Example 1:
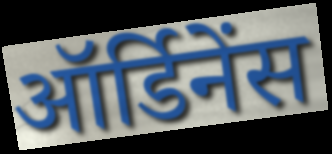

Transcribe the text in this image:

ऑर्डिनेंस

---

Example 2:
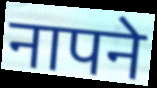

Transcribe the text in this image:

नापने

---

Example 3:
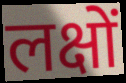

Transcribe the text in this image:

लक्षों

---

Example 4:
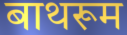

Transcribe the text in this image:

बाथरूम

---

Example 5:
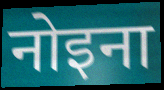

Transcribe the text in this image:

नोइना